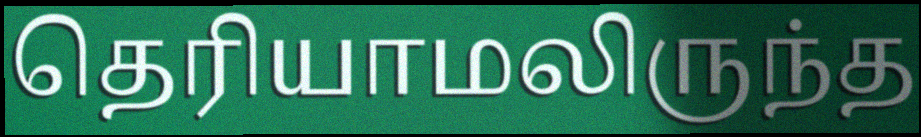
தெரியாமலிருந்த